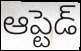
ఆప్టెడ్